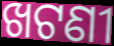
ଖଟଣୀ